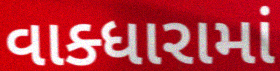
વાક્ધારામાં